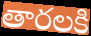
తారలకి